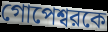
গোপেশ্বরকে